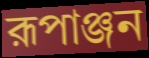
রূপাঞ্জন